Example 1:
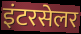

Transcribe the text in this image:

इंटरसेलर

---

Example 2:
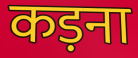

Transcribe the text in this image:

कड़ना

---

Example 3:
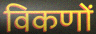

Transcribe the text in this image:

विकणों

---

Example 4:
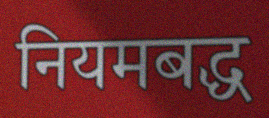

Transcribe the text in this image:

नियमबद्ध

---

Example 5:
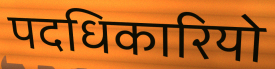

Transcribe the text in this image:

पदधिकारियो